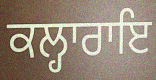
ਕਲ੍ਹਾਰਾਇ